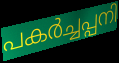
പകർച്ചപ്പനി